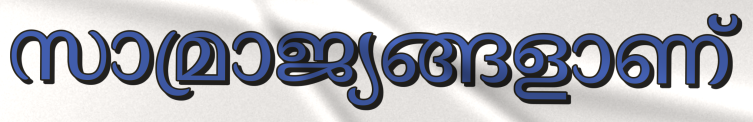
സാമ്രാജ്യങ്ങളാണ്